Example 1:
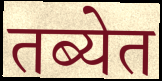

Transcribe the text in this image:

तब्येत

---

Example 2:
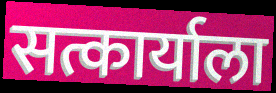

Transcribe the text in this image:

सत्कार्याला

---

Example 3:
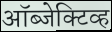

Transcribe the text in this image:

ऑब्जेक्टिव्ह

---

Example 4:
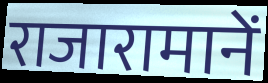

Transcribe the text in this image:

राजारामानें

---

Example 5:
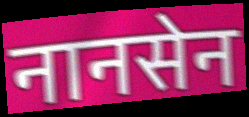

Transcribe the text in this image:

नानसेन